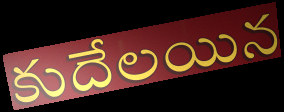
కుదేలయిన